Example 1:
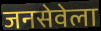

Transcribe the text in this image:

जनसेवेला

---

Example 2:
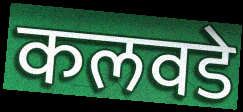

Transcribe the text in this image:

कलवडे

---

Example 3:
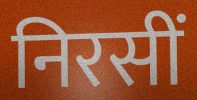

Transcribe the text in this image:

निरसीं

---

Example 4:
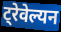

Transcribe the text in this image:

ट्रेवेल्यन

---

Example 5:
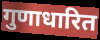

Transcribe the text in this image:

गुणाधारित